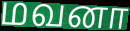
மவனா